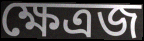
ক্ষেত্রজ